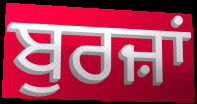
ਬੁਰਜ਼ਾਂ